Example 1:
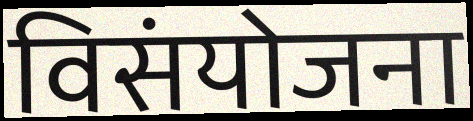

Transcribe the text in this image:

विसंयोजना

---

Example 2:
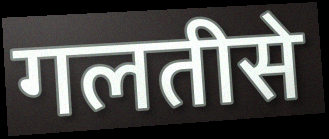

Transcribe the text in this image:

गलतीसे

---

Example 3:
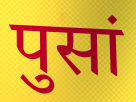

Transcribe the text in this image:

पुसां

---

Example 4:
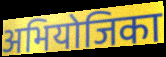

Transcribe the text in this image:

अभियोजिका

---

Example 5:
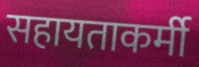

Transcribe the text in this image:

सहायताकर्मी